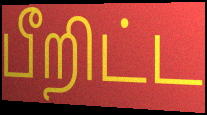
பீறிட்ட